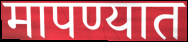
मापण्यात